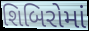
શિબિરોમાં